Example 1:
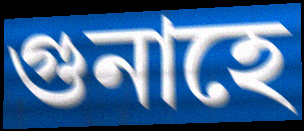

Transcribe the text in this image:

গুনাহে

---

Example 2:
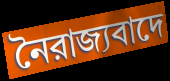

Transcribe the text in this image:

নৈরাজ্যবাদে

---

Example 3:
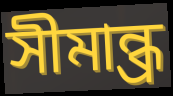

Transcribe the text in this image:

সীমান্ধ্র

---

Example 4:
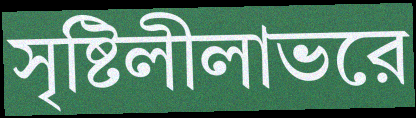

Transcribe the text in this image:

সৃষ্টিলীলাভরে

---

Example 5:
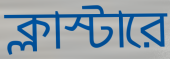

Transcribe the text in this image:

ক্লাস্টারে